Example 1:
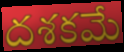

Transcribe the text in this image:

దశకమే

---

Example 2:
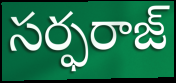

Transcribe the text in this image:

సర్ఫరాజ్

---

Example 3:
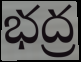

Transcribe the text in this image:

భద్ర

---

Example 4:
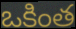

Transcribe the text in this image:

ఒకింత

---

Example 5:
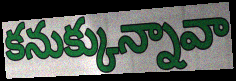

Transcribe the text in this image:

కనుక్కున్నావా